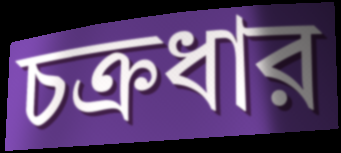
চক্রধার